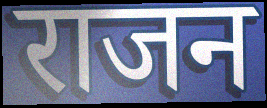
राजन